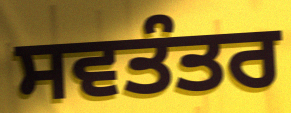
ਸਵਤੰਤਰ